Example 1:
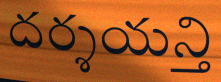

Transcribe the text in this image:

దర్శయన్తి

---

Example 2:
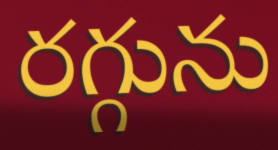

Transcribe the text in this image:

రగ్గును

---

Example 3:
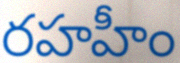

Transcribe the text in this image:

రహహీం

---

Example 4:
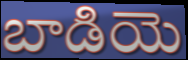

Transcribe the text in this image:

బాడియె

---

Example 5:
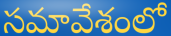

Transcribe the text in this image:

సమావేశంలో